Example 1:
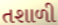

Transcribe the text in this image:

તશાળી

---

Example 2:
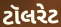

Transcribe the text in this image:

ટૉલરેટ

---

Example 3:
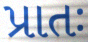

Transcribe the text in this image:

પ્રાતઃ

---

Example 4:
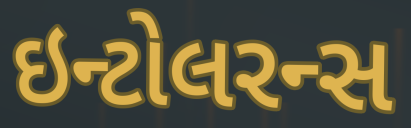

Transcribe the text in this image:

ઇન્ટોલરન્સ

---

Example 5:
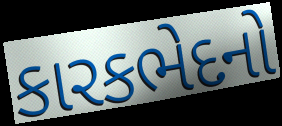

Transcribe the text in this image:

કારકભેદનો